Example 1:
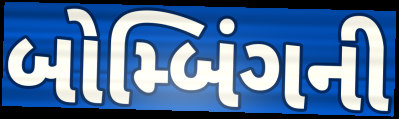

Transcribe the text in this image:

બોમ્બિંગની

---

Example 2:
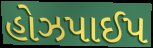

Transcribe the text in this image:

હોઝપાઈપ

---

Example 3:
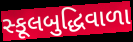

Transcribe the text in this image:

સ્કૂલબુદ્ધિવાળા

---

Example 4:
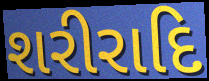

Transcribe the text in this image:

શરીરાદિ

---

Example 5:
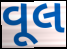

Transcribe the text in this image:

વૂલ